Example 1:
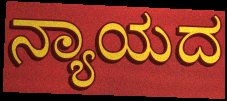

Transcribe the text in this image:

ನ್ಯಾಯದ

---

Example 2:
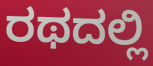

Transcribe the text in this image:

ರಥದಲ್ಲಿ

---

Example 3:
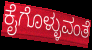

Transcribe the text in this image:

ಕೈಗೊಳ್ಳುವಂತೆ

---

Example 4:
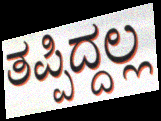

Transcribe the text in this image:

ತಪ್ಪಿದ್ದಲ್ಲ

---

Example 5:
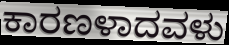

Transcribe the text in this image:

ಕಾರಣಳಾದವಳು